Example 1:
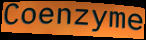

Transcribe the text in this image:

Coenzyme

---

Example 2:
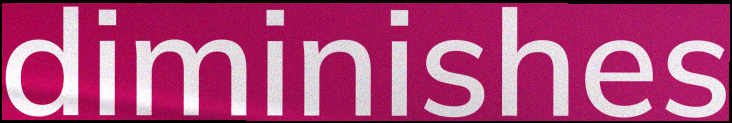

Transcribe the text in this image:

diminishes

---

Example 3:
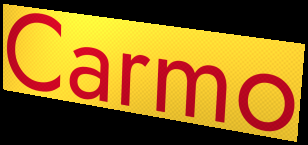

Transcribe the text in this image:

Carmo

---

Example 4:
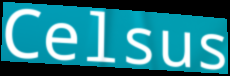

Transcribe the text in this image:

Celsus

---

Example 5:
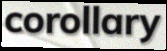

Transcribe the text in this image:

corollary